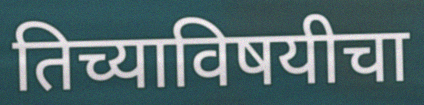
तिच्याविषयीचा